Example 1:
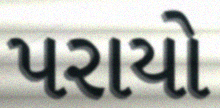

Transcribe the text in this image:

પરાયો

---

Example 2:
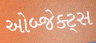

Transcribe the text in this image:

ઓબ્જેક્ટ્સ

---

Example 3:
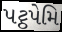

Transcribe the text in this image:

પટ્ઠપેમિ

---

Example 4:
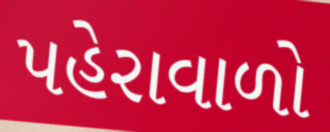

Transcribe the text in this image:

પહેરાવાળો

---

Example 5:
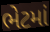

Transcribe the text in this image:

ભેટમાં